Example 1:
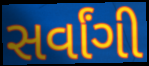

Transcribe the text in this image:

સર્વાંગી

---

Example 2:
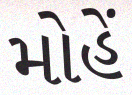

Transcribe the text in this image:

મોહેં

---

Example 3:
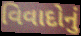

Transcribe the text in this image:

વિવાદોનું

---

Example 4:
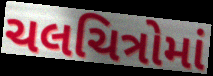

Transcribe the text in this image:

ચલચિત્રોમાં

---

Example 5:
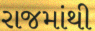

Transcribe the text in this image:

રાજમાંથી